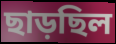
ছাড়ছিল